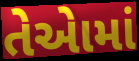
તેએામાં